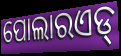
ପୋଲାରଏଡ୍